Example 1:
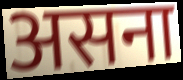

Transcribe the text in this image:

असना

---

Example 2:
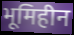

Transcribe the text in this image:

भूमिहीन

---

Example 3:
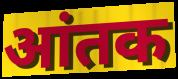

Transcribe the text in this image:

आंतक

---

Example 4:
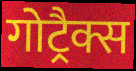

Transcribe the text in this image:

गोट्रैक्स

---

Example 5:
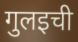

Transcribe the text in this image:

गुलइची